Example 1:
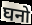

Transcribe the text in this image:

घनो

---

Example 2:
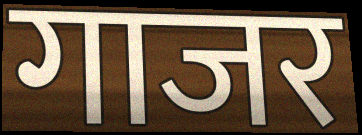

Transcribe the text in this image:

गाजर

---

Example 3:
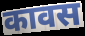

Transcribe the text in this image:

कावस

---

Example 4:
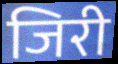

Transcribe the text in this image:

जिरी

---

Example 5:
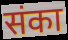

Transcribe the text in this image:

संका